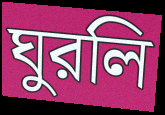
ঘুরলি